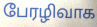
பேரழிவாக